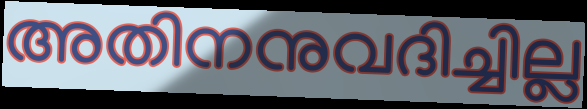
അതിനനുവദിച്ചില്ല